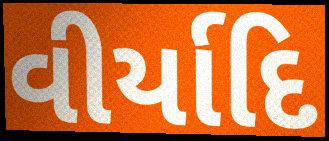
વીર્યાદિ